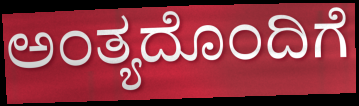
ಅಂತ್ಯದೊಂದಿಗೆ